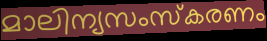
മാലിന്യസംസ്കരണം